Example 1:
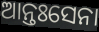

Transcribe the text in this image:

ଆନ୍ତଃସେନା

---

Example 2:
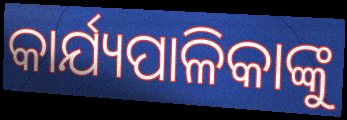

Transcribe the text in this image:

କାର୍ଯ୍ୟପାଳିକାଙ୍କୁ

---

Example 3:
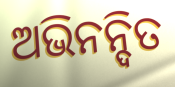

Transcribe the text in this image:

ଅଭିନନ୍ଦିତ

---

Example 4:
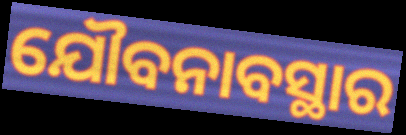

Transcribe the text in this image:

ଯୌବନାବସ୍ଥାର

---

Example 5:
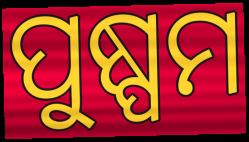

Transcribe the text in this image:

ପୁଷ୍ପମ